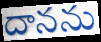
దానను